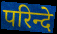
परिन्दे